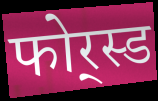
फोर्स्ड